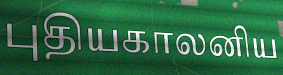
புதியகாலனிய